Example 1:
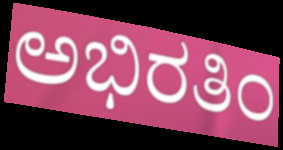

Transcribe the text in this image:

ಅಭಿರತಿಂ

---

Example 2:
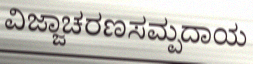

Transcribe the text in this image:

ವಿಜ್ಜಾಚರಣಸಮ್ಪದಾಯ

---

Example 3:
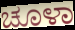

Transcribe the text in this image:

ಚೂಳಾ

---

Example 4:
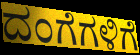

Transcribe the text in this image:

ದಂಗೆಗಳಿಗೆ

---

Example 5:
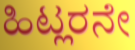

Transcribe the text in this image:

ಹಿಟ್ಲರನೇ